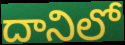
దానిలో